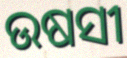
ଉଷସୀ